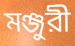
মঞ্জুরী